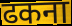
ढकना